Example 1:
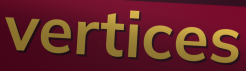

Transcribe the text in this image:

vertices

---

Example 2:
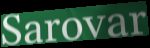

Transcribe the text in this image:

Sarovar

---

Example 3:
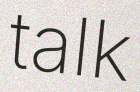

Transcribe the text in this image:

talk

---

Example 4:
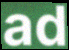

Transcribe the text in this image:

ad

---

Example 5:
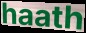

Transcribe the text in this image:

haath